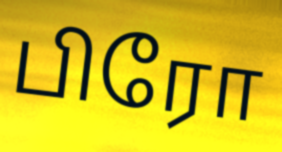
பிரோ